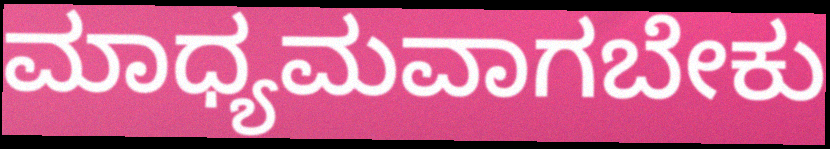
ಮಾಧ್ಯಮವಾಗಬೇಕು